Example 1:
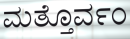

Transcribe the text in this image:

ಮತ್ತೊರ್ವಂ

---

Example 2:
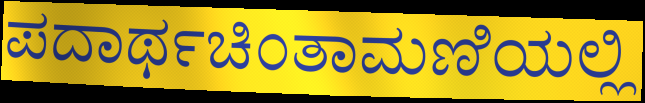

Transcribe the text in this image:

ಪದಾರ್ಥಚಿಂತಾಮಣಿಯಲ್ಲಿ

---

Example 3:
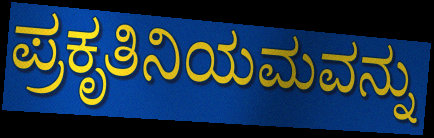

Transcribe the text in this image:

ಪ್ರಕೃತಿನಿಯಮವನ್ನು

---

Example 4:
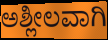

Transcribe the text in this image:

ಅಶ್ಲೀಲವಾಗಿ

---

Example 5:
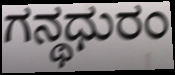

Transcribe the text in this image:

ಗನ್ಥಧುರಂ